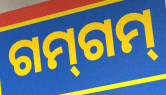
ଗମ୍‍ଗମ୍